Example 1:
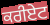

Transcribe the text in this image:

ਕਰੀਏਟ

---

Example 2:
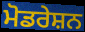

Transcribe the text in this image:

ਮੋਡਰੇਸ਼ਨ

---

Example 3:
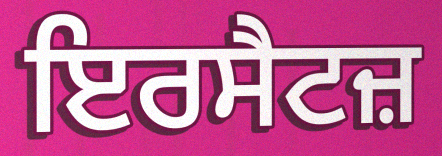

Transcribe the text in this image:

ਇਰਸੈਟਜ਼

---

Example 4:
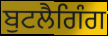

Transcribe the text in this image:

ਬੁਟਲੈਗਿੰਗ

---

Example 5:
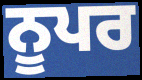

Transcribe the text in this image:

ਨੂਪਰ